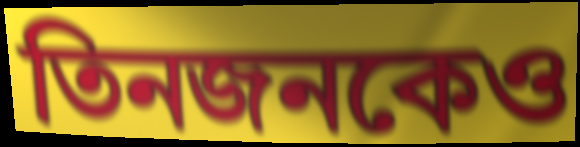
তিনজনকেও